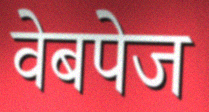
वेबपेज